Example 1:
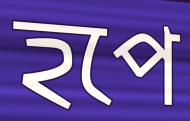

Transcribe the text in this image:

হপে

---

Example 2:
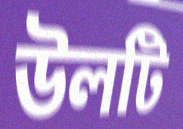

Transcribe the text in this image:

উলটি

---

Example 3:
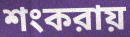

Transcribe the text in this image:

শংকরায়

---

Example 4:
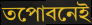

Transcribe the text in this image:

তপোবনেই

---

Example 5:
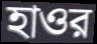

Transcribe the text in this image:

হাওর